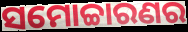
ସମୋଚ୍ଚାରଣର